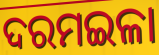
ଦରମଇଳା